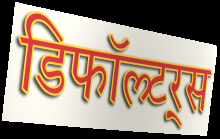
डिफॉल्टर्स